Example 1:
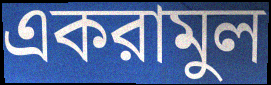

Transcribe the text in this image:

একরামুল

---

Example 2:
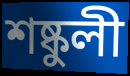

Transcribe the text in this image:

শষ্কুলী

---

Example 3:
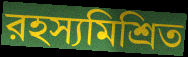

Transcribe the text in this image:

রহস্যমিশ্রিত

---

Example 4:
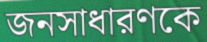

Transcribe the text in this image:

জনসাধারণকে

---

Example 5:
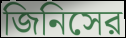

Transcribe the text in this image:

জিনিসের